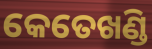
କେତେଖଣ୍ଡି